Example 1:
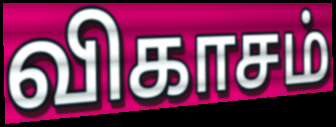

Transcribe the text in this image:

விகாசம்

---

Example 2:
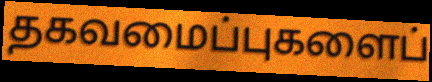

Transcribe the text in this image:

தகவமைப்புகளைப்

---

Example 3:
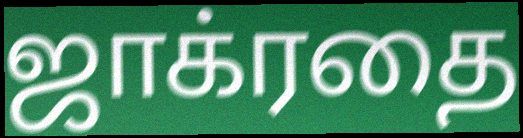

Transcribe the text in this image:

ஜாக்ரதை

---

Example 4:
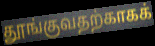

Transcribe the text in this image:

தூங்குவதற்காகக்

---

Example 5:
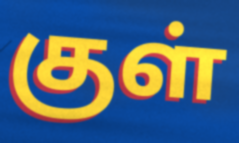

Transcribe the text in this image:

குள்